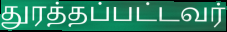
துரத்தப்பட்டவர்